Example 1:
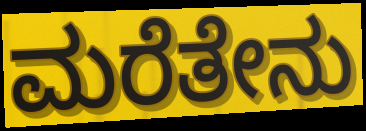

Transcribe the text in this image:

ಮರೆತೇನು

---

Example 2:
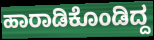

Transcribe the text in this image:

ಹಾರಾಡಿಕೊಂಡಿದ್ದ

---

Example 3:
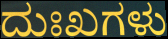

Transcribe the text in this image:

ದುಃಖಗಳು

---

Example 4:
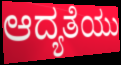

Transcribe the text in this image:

ಆದ್ಯತೆಯು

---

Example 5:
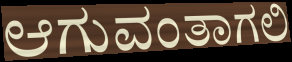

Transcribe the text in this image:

ಆಗುವಂತಾಗಲಿ